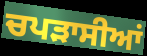
ਚਪੜਾਸੀਆਂ